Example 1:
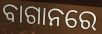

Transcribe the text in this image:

ବାଗାନରେ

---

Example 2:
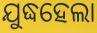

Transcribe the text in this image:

ଯୁଦ୍ଧହେଲା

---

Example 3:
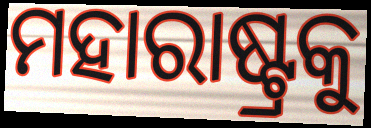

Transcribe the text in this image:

ମହାରାଷ୍ଟ୍ରକୁ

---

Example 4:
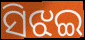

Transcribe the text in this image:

ସିଝଇ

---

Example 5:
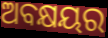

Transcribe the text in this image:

ଅବକ୍ଷୟର